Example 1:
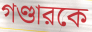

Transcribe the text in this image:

গণ্ডারকে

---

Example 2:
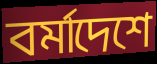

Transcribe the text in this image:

বর্মাদেশে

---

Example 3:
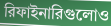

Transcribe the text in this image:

রিফাইনারিগুলোও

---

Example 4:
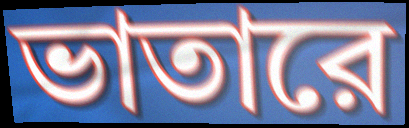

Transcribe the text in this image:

ভাতারে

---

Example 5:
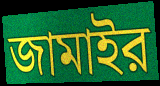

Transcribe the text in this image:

জামাইর